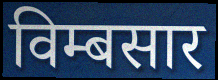
विम्बसार